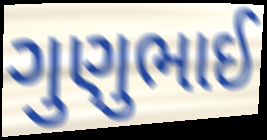
ગુણુભાઈ